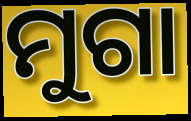
ମୁଗା